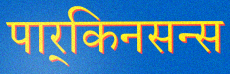
पार्किनसन्स